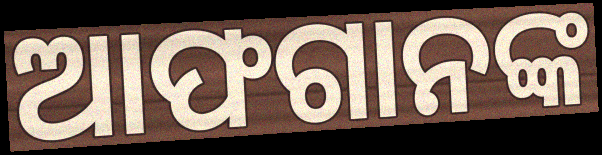
ଆଫଗାନଙ୍କ